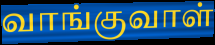
வாங்குவாள்